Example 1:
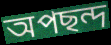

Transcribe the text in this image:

অপছন্দ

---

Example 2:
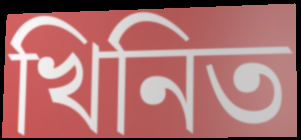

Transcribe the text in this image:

খিনিত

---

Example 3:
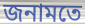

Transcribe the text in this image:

জনামতে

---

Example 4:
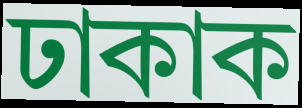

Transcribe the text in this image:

ঢাকাক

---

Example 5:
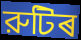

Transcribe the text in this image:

ৰুটিৰ